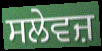
ਸਲੇਵਜ਼